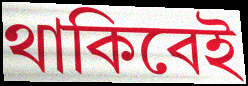
থাকিবেই